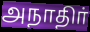
அநாதிர்